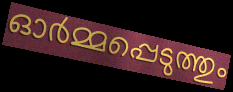
ഓർമ്മപ്പെടുത്തും